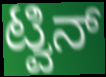
ಟ್ವಿನ್